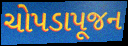
ચોપડાપૂજન